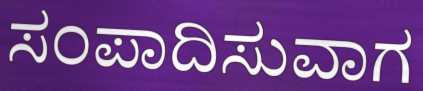
ಸಂಪಾದಿಸುವಾಗ